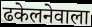
ढकेलनेवाला